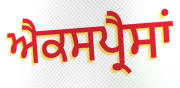
ਐਕਸਪ੍ਰੈਸਾਂ